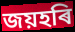
জয়হৰি